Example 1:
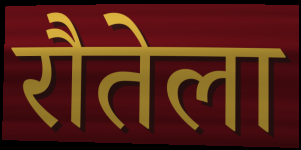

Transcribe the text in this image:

रौतेला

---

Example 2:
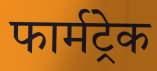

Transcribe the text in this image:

फार्मट्रेक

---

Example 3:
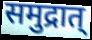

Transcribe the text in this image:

समुद्रात्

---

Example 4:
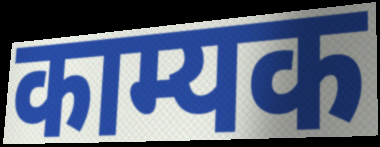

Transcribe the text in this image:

काम्यक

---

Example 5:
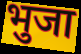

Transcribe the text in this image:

भुजा